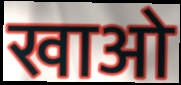
खाओ